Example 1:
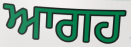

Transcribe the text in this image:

ਆਗਹ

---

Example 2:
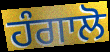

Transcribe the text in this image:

ਹੰਗਾਲੋ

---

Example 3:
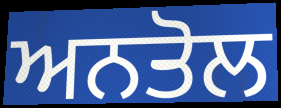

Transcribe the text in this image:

ਅਨਤੋਲ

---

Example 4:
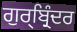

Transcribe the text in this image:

ਗੁਰ੍ਬ੍ਰਿੰਦਰ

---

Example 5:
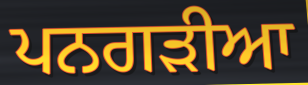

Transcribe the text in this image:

ਪਨਗੜੀਆ